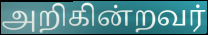
அறிகின்றவர்